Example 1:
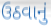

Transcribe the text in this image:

ઉઠવાનું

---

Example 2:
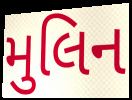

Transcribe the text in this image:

મુલિન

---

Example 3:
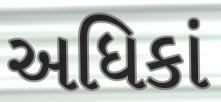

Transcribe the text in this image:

અધિકાં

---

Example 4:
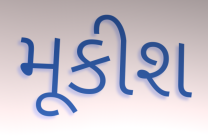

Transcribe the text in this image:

મૂકીશ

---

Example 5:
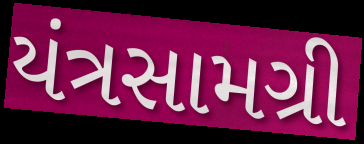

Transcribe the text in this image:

યંત્રસામગ્રી